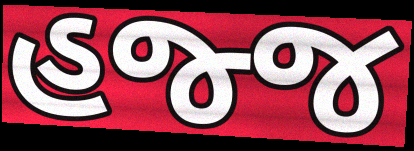
હજ્જ